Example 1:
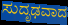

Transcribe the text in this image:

ಸುದೃಢವಾದ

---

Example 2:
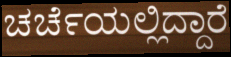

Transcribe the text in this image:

ಚರ್ಚೆಯಲ್ಲಿದ್ದಾರೆ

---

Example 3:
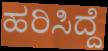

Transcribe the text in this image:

ಹರಿಸಿದ್ದೆ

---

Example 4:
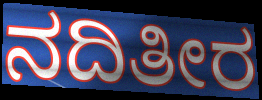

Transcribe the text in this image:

ನದಿತೀರ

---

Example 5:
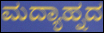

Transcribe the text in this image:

ಮದ್ಯಾಹ್ನದ